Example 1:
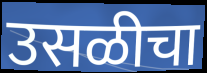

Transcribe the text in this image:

उसळीचा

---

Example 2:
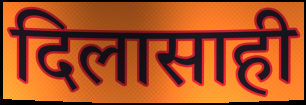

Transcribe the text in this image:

दिलासाही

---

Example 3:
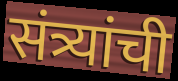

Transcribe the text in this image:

संत्र्यांची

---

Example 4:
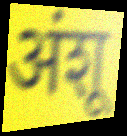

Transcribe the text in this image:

अंशू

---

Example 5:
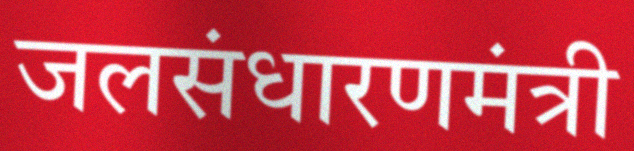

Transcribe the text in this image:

जलसंधारणमंत्री